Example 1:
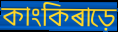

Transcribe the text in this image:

কাংকিৰাড়ে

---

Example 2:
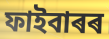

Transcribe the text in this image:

ফাইবাৰৰ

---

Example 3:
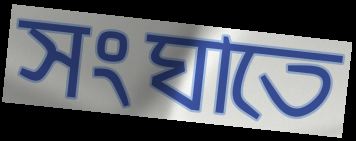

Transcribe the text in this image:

সংঘাতে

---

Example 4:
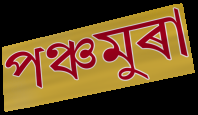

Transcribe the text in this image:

পঞ্চমুৰা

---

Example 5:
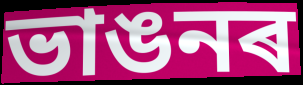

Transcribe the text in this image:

ভাঙনৰ